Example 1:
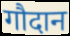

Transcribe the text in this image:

गौदान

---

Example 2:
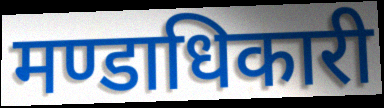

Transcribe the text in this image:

मण्डाधिकारी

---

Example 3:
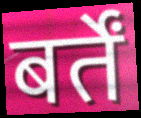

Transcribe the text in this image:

बर्तें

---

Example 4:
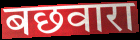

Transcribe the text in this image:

बछवारा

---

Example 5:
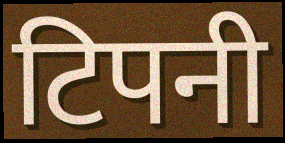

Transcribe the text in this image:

टिपनी